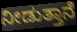
ನೀಡುತ್ತಾನೆ